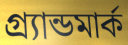
গ্র্যান্ডমার্ক